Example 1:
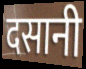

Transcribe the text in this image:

दसानी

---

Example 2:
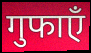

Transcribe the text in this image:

गुफाएँ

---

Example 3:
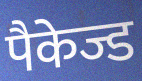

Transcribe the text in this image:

पैकेज्ड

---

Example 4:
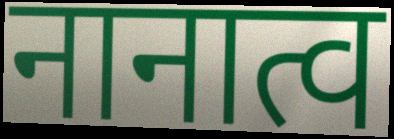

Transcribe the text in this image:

नानात्व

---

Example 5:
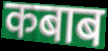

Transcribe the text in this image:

कबाब